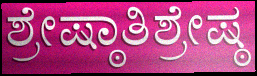
ಶ್ರೇಷ್ಠಾತಿಶ್ರೇಷ್ಠ